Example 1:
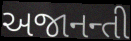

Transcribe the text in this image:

અજાનન્તી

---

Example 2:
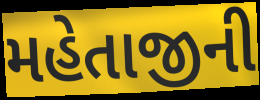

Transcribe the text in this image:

મહેતાજીની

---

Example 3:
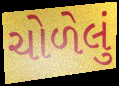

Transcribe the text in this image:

ચોળેલું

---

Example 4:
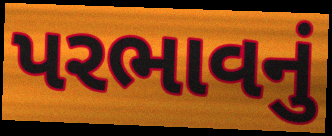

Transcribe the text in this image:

પરભાવનું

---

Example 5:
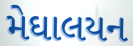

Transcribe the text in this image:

મેઘાલયન